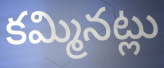
కమ్మినట్లు